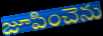
జూపించెను